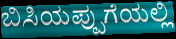
ಬಿಸಿಯಪ್ಪುಗೆಯಲ್ಲಿ